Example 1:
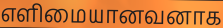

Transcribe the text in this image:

எளிமையானவனாக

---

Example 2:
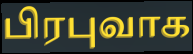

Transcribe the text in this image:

பிரபுவாக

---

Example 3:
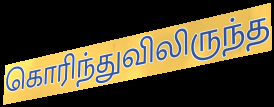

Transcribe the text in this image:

கொரிந்துவிலிருந்த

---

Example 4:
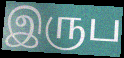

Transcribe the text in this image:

இருப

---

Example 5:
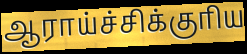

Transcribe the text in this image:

ஆராய்ச்சிக்குரிய